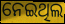
ନେଇଥିଲ